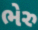
ભેરુ